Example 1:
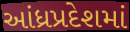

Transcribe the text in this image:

આંધ્રપ્રદેશમાં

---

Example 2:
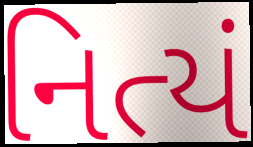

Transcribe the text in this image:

નિત્યં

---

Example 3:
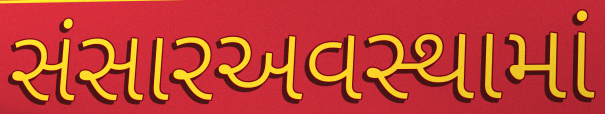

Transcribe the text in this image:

સંસારઅવસ્થામાં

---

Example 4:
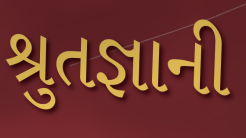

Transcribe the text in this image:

શ્રુતજ્ઞાની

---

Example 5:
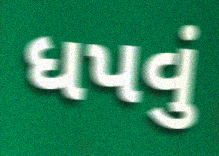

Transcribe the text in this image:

ધપવું